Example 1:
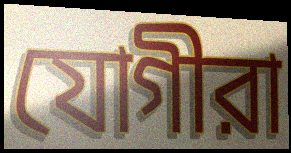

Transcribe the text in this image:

যোগীরা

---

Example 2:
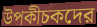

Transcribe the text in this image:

উপকীচকদের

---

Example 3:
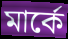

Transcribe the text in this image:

মার্কে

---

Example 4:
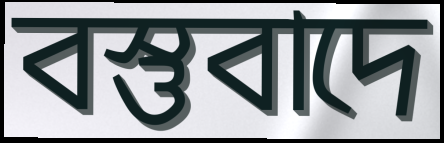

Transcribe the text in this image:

বস্তুবাদে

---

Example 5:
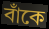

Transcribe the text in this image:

বাঁকে